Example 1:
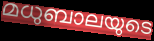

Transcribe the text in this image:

മധുബാലയുടെ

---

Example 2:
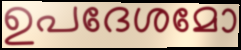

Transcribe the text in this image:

ഉപദേശമോ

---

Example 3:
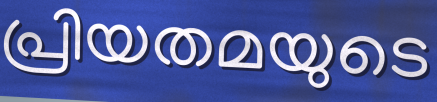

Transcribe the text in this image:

പ്രിയതമയുടെ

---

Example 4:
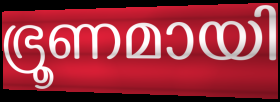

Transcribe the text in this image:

ഭ്രൂണമായി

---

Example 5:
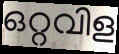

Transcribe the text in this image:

ഒറ്റവിള